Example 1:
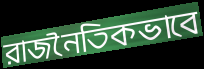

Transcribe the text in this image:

রাজনৈতিকভাবে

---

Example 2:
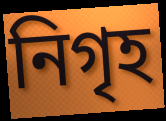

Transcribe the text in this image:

নিগৃহ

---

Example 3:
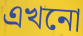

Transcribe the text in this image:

এখনো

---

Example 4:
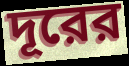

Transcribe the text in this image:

দূরের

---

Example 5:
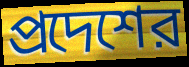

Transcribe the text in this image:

প্রদেশের